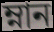
ম্নান